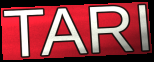
TARI